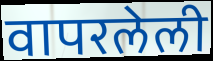
वापरलेली